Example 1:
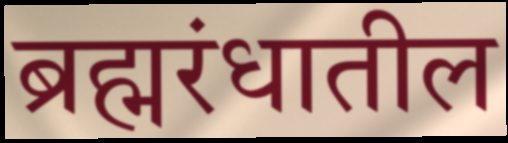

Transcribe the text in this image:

ब्रह्मरंधातील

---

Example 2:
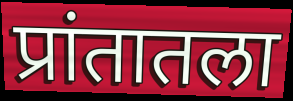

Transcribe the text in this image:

प्रांतातला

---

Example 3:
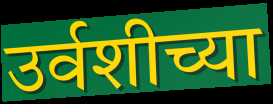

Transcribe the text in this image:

उर्वशीच्या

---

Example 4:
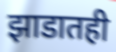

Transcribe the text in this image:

झाडातही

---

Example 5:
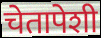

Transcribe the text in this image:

चेतापेशी